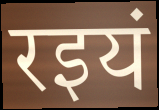
रइयं